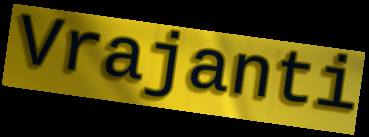
Vrajanti